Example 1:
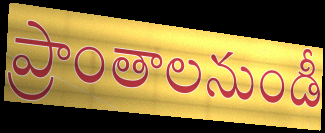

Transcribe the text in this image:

ప్రాంతాలనుండీ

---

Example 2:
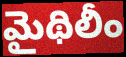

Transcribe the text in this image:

మైథిలీం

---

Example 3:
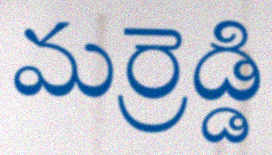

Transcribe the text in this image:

మర్రెడ్డి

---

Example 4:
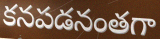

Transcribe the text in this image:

కనపడనంతగా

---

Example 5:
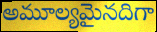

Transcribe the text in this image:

అమూల్యమైనదిగా